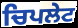
ਚਿਪਲੇਟ